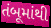
તંબૂમાંથી